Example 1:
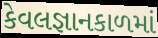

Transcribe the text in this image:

કેવલજ્ઞાનકાળમાં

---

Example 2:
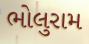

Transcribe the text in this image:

ભોલુરામ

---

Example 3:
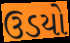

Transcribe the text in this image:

ઉડયો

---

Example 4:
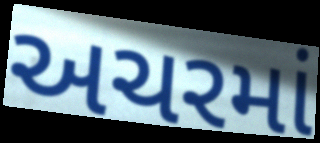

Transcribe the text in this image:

અચરમાં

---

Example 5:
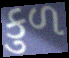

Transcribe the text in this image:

કુળ